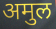
अमुल